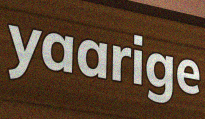
yaarige